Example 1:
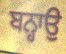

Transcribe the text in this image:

ਬਨ੍ਹਾਉ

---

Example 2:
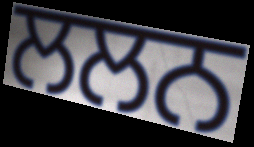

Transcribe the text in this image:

ਲਲਨ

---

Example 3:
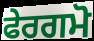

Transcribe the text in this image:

ਫੇਰਗਮੋ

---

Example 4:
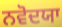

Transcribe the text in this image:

ਨਵੋਦਯਾ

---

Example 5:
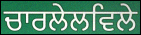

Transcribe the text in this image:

ਚਾਰਲੇਲਵਿਲੇ